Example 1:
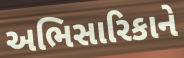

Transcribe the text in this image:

અભિસારિકાને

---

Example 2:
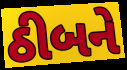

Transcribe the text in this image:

ઠીબને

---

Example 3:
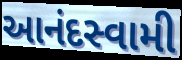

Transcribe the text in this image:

આનંદસ્વામી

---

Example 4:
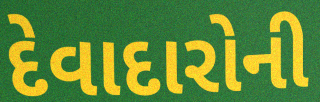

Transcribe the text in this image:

દેવાદારોની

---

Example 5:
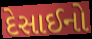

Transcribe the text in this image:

દેસાઈનો